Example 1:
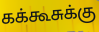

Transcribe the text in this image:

கக்கூசுக்கு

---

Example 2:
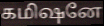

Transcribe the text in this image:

கமிஷனே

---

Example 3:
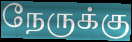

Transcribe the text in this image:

நேருக்கு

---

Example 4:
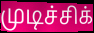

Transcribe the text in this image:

முடிச்சிக்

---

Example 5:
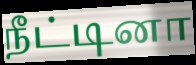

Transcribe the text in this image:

நீட்டினா